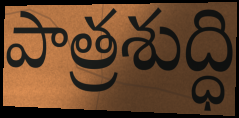
పాత్రశుద్ధి